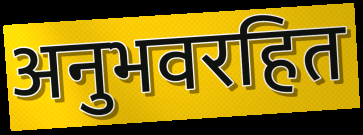
अनुभवरहित